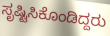
ಸೃಷ್ಟಿಸಿಕೊಂಡಿದ್ದರು